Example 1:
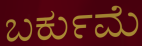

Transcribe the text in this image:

ಬರ್ಕುಮೆ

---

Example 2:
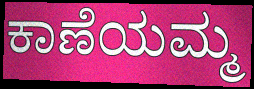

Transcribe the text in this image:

ಕಾಣೆಯಮ್ಮ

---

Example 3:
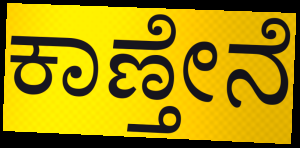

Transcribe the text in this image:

ಕಾಣ್ತೇನೆ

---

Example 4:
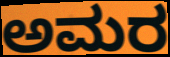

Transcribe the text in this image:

ಅಮರ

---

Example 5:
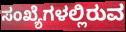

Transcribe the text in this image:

ಸಂಖ್ಯೆಗಳಲ್ಲಿರುವ